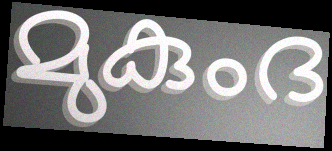
മുകുംദ